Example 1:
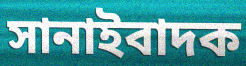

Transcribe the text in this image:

সানাইবাদক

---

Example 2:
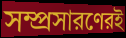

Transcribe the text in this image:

সম্প্রসারণেরই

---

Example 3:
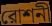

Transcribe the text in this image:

রোশনী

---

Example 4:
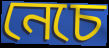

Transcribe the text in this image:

নেচে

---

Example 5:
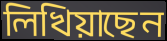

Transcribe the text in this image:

লিখিয়াছেন